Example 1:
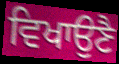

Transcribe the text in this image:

ਵਿਖਾਉਣੈ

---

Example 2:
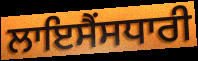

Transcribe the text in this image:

ਲਾਇਸੈਂਸਧਾਰੀ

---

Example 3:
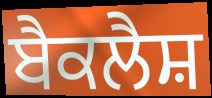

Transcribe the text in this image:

ਬੈਕਲੈਸ਼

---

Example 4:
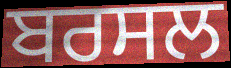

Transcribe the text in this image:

ਬਰਸਲ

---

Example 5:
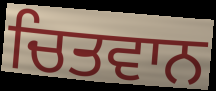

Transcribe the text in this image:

ਚਿਤਵਾਨ